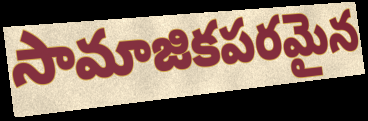
సామాజికపరమైన